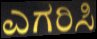
ಎಗರಿಸಿ